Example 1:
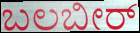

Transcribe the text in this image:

ಬಲಬೀರ್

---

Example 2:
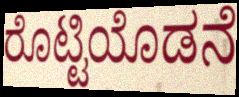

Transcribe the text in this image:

ರೊಟ್ಟಿಯೊಡನೆ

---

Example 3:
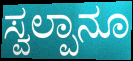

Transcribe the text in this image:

ಸ್ವಲ್ಪಾನೂ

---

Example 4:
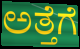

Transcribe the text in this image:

ಅತ್ತೆಗೆ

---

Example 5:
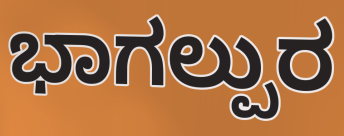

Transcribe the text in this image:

ಭಾಗಲ್ಪುರ